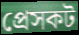
প্রেসকট